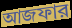
আজফার